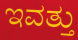
ಇವತ್ತು